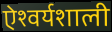
ऐश्वर्यशाली